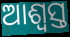
ଆଶ୍ବସ୍ତ